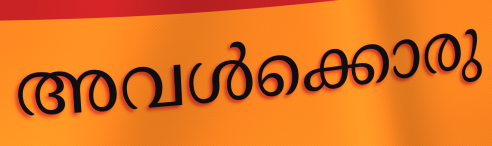
അവൾക്കൊരു